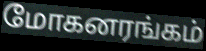
மோகனரங்கம்